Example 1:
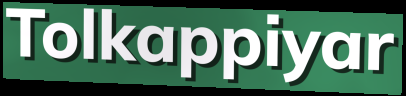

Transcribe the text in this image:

Tolkappiyar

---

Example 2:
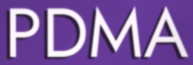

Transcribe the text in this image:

PDMA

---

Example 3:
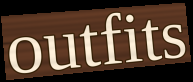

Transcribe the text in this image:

outfits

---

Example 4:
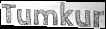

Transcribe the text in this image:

Tumkur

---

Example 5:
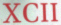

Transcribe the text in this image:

XCII